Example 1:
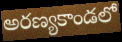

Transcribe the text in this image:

అరణ్యకాండలో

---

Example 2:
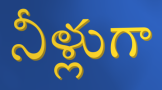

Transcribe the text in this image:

నీళ్లుగా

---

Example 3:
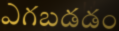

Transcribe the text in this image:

ఎగబడడం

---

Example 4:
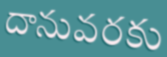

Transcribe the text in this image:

దానువరకు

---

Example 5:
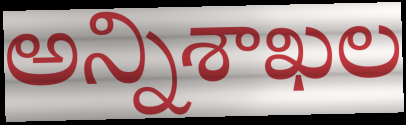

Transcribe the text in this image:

అన్నిశాఖల